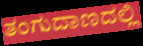
ತಂಗುದಾಣದಲ್ಲಿ